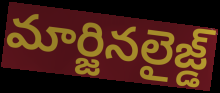
మార్జినలైజ్డ్